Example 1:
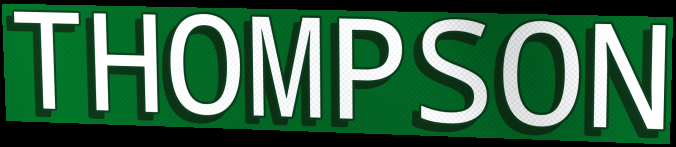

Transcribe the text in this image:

THOMPSON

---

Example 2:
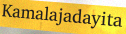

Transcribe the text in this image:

Kamalajadayita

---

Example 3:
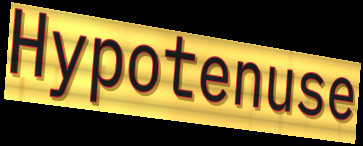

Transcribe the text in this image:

Hypotenuse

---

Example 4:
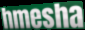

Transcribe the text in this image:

hmesha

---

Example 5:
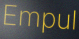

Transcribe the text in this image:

Empul